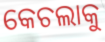
କେଚଲାକୁ